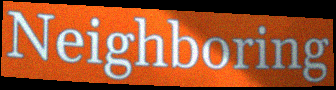
Neighboring